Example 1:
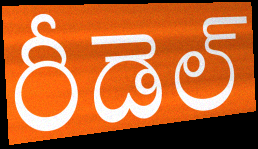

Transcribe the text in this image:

రీడెల్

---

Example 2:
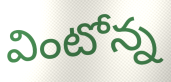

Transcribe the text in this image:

వింటోన్న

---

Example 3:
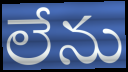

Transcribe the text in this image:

లేను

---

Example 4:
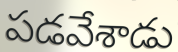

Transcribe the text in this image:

పడవేశాడు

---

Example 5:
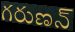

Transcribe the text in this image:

గరుణన్